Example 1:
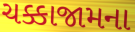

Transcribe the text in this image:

ચક્કાજામના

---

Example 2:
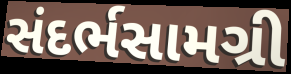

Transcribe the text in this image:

સંદર્ભસામગ્રી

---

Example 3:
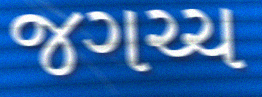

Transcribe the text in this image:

જગચ્ચ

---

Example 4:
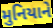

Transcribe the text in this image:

મુનિયાને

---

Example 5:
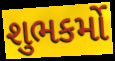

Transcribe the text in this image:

શુભકર્મો